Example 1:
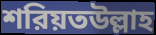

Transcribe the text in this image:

শরিয়তউল্লাহ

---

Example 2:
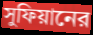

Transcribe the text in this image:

সুফিয়ানের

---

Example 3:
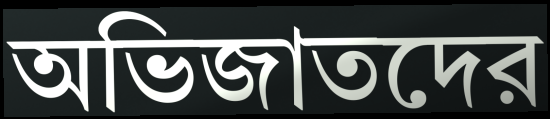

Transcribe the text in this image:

অভিজাতদের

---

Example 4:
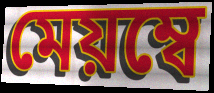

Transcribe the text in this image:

মেয়ম্বে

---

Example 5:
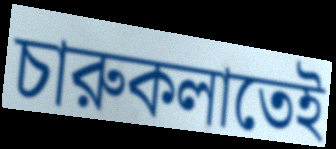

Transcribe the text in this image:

চারুকলাতেই